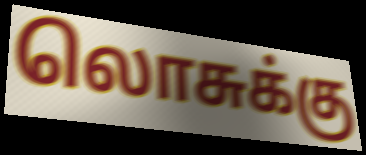
லொசுக்கு